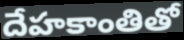
దేహకాంతితో